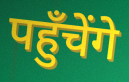
पहुँचेंगे